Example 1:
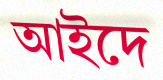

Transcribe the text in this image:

আইদে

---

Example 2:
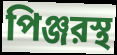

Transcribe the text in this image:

পিঞ্জরস্থ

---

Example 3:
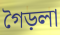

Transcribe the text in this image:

গৈড়লা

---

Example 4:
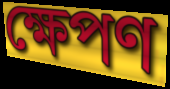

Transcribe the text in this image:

ক্ষেপণ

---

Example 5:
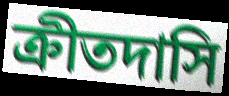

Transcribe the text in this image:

ক্রীতদাসি